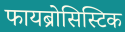
फायब्रोसिस्टिक